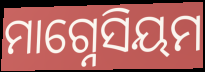
ମାଗ୍ନେସିୟମ